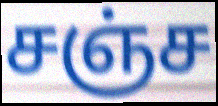
சஞ்ச